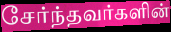
சேர்ந்தவர்களின்